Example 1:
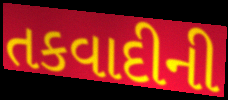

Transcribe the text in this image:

તકવાદીની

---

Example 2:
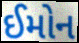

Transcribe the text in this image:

ઈમોન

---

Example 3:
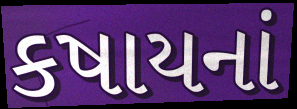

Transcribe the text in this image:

કષાયનાં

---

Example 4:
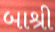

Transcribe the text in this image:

બાશ્રી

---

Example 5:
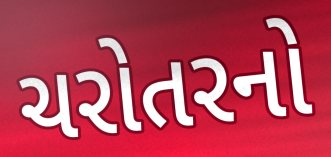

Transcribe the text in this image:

ચરોતરનો